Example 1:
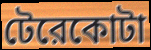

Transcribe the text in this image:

টেরেকোটা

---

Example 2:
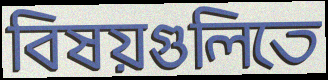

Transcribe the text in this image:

বিষয়গুলিতে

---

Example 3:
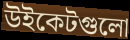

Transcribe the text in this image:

উইকেটগুলো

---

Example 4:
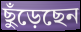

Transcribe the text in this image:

ছুঁড়েছেন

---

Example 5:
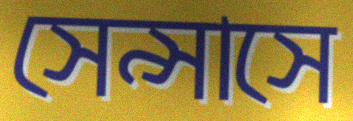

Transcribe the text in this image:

সেন্সাসে